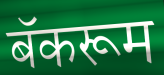
बॅकरूम